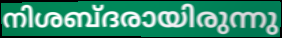
നിശബ്ദരായിരുന്നു